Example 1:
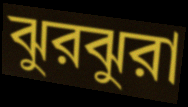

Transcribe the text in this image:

ঝুরঝুরা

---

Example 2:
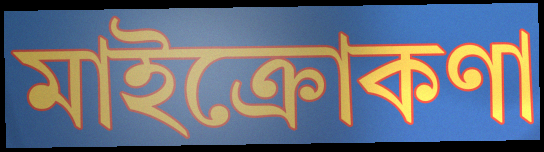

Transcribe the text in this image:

মাইক্রোকণা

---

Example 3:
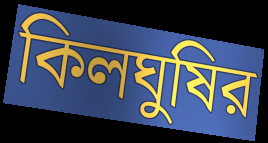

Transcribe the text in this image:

কিলঘুষির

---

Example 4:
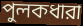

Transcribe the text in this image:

পুলকধারা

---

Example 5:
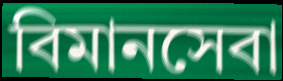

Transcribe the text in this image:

বিমানসেবা